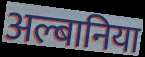
अल्बानिया